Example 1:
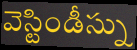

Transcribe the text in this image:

వెస్టిండీస్ను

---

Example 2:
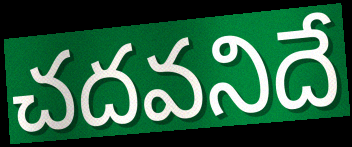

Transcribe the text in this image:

చదవనిదే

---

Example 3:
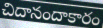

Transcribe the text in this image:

చిదానందాకారం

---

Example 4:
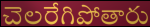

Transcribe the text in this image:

చెలరేగిపోతారు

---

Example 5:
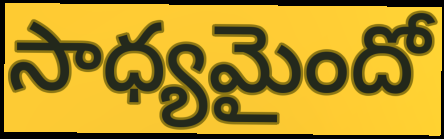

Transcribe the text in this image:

సాధ్యమైందో